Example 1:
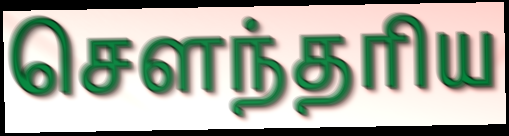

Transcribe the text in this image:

சௌந்தரிய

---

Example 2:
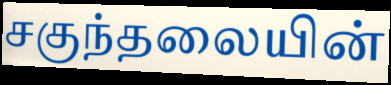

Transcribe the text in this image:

சகுந்தலையின்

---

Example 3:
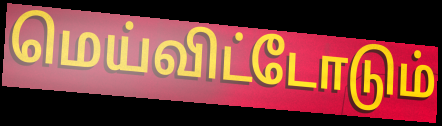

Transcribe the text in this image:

மெய்விட்டோடும்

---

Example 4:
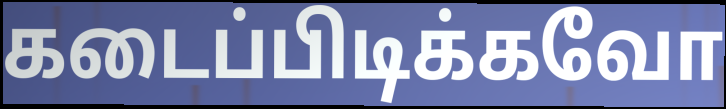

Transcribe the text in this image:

கடைப்பிடிக்கவோ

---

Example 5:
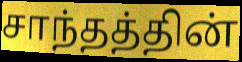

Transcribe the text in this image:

சாந்தத்தின்